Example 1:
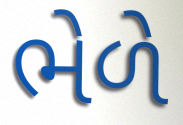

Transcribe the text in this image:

ભેળે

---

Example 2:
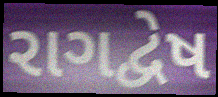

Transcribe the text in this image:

રાગદ્વેષ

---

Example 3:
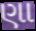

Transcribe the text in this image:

ણા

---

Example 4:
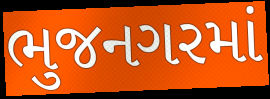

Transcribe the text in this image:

ભુજનગરમાં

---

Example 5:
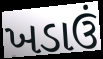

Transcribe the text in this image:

ખડાઉં